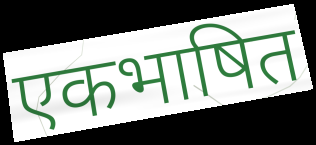
एकभाषित